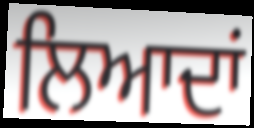
ਲਿਆਦਾਂ